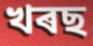
খৰছ